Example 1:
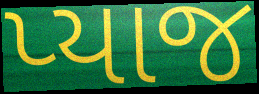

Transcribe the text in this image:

પ્યાજ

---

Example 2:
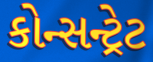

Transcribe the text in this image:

કોન્સન્ટ્રેટ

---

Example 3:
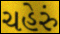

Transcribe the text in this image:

ચહેરું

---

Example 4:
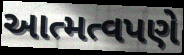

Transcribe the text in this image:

આત્મત્વપણે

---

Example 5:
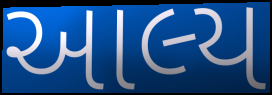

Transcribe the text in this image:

આલ્ય